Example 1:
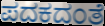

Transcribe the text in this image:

ಪದಕದಂತೆ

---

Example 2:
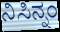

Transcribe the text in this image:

ನಿಸಿನ್ನಂ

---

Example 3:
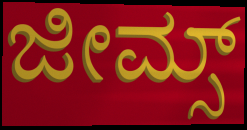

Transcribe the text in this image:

ಜೀಮ್ಸ್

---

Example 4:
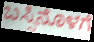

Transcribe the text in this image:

ಬಸ್ಸಿನೊಳಗೆ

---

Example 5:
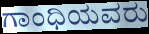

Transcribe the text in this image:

ಗಾಂಧಿಯವರು